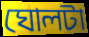
ঘোলটা